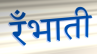
रँभाती